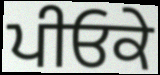
ਪੀਓਕੇ